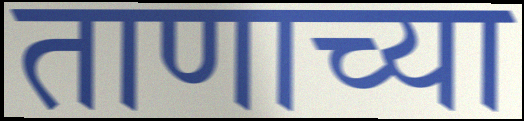
ताणाच्या